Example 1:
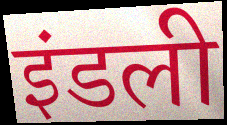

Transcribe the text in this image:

इंडली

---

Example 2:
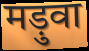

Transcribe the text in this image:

मड़ुवा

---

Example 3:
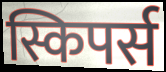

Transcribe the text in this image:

स्किपर्स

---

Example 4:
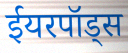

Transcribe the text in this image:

ईयरपॉड्स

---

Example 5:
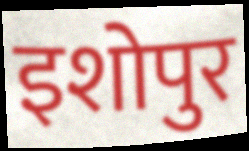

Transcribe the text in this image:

इशोपुर